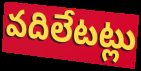
వదిలేటట్లు